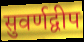
सुवर्णद्वीप